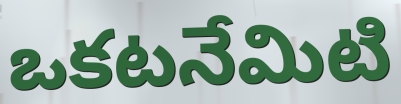
ఒకటనేమిటి